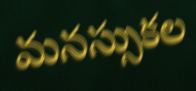
మనస్సుకల